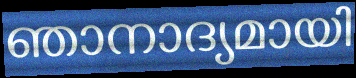
ഞാനാദ്യമായി